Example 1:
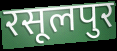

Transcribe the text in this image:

रसूलपुर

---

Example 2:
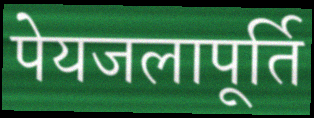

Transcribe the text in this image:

पेयजलापूर्ति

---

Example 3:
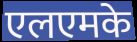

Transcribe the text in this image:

एलएमके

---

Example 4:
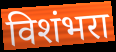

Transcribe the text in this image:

विशंभरा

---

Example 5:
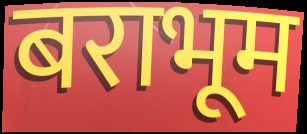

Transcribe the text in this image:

बराभूम